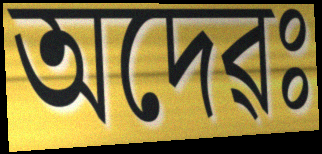
অদেৱঃ